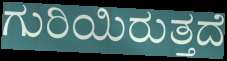
ಗುರಿಯಿರುತ್ತದೆ